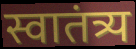
स्वातंत्र्य